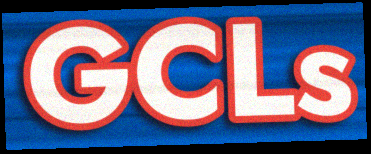
GCLs